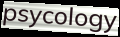
psycology